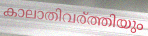
കാലാതിവര്ത്തിയും